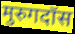
मुरुगदॉस